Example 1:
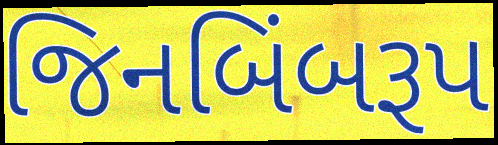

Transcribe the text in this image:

જિનબિંબરૂપ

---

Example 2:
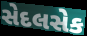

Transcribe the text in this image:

સેદલસેક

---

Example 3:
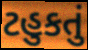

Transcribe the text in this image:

ટહુકતું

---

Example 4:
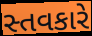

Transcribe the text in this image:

સ્તવકારે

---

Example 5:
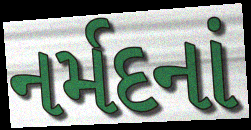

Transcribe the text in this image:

નર્મદનાં